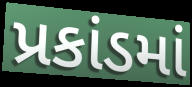
પ્રકાંડમાં